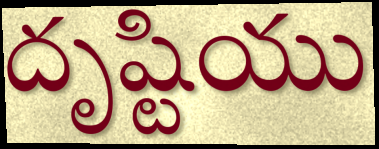
దృష్టియు